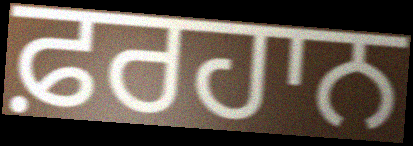
ਫ਼ਰਹਾਨ